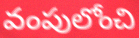
వంపులోంచి